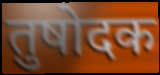
तुषोदक